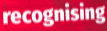
recognising